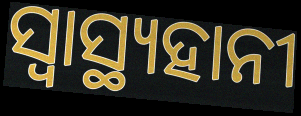
ସ୍ବାସ୍ଥ୍ୟହାନୀ